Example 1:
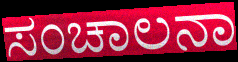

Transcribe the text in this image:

ಸಂಚಾಲನಾ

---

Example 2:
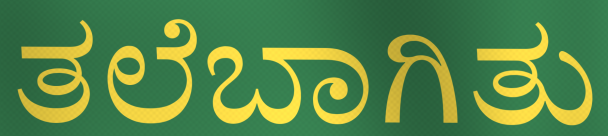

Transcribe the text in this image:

ತಲೆಬಾಗಿತು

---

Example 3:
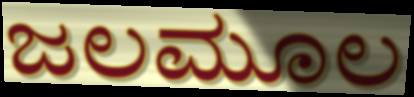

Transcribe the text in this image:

ಜಲಮೂಲ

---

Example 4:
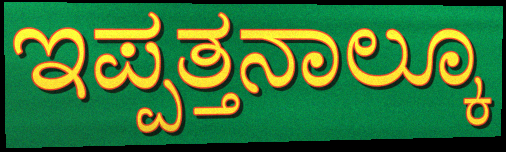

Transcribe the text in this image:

ಇಪ್ಪತ್ತನಾಲ್ಕೂ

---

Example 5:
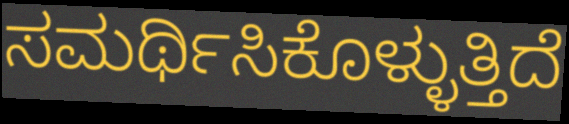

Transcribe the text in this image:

ಸಮರ್ಥಿಸಿಕೊಳ್ಳುತ್ತಿದೆ